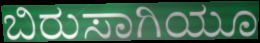
ಬಿರುಸಾಗಿಯೂ